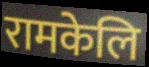
रामकेलि